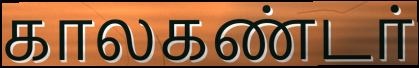
காலகண்டர்